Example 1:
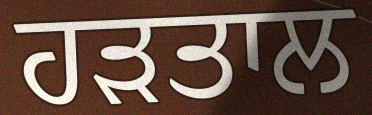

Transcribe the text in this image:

ਹੜਤਾਲ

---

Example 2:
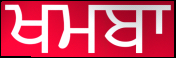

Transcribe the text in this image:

ਖਮਬਾ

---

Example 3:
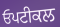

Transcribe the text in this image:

ਓਪਟੀਕਲ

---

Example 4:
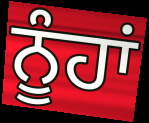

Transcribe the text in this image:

ਨੂੰਹਾਂ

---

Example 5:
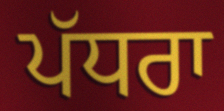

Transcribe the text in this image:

ਪੱਧਰਾ